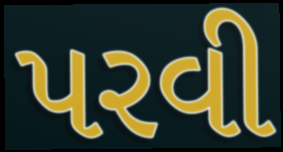
પરવી